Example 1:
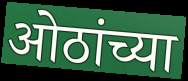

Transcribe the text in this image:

ओठांच्या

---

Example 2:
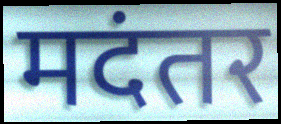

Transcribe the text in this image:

मदंतर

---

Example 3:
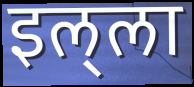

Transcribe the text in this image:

इल्ला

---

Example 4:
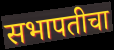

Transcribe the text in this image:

सभापतीचा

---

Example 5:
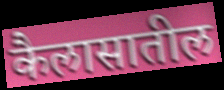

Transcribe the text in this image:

कैलासातील